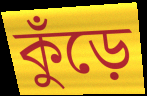
কুঁড়ে